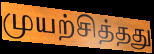
முயற்சித்தது